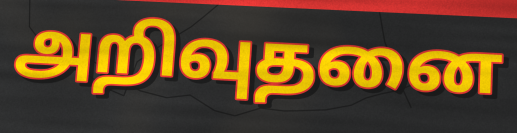
அறிவுதனை